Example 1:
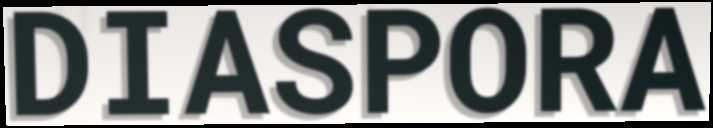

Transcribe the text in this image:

DIASPORA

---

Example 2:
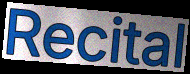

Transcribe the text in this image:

Recital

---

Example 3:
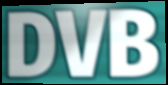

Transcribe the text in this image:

DVB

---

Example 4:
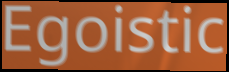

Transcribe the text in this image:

Egoistic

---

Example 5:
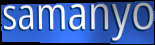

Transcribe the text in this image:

samanyo